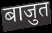
बाजुत